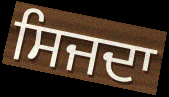
ਸਿਜਦਾ